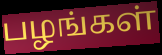
பழங்கள்